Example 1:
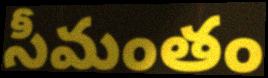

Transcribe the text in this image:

సీమంతం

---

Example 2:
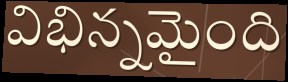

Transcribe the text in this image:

విభిన్నమైంది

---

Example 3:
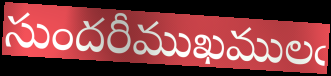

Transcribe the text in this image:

సుందరీముఖములఁ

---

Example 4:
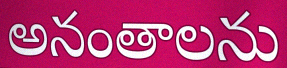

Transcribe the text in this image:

అనంతాలను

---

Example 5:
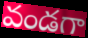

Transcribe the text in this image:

వండగా